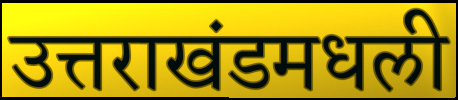
उत्तराखंडमधली